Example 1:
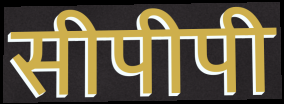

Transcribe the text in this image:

सीपीपी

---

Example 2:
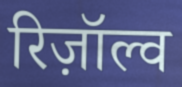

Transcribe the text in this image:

रिज़ॉल्व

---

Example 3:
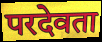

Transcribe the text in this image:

परदेवता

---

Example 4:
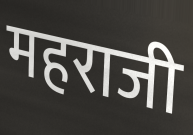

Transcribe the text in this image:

महराजी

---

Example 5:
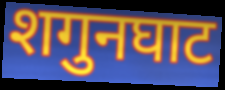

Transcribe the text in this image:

शगुनघाट